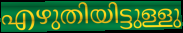
എഴുതിയിട്ടുള്ളു